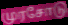
முரசோடு